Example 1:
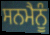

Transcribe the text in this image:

ਸਨਮੈਨੂੰ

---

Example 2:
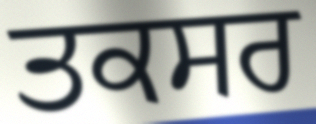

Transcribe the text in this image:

ਤਕਸਰ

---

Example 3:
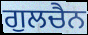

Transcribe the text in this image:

ਗੁਲਚੈਨ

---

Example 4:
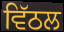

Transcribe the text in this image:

ਵਿੱਠਲ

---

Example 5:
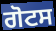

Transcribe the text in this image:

ਗੋਟਸ